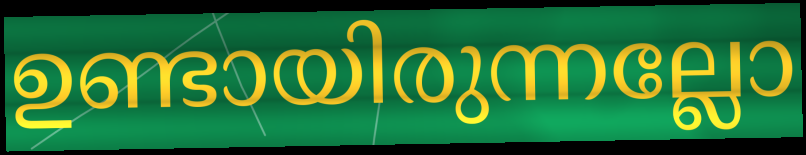
ഉണ്ടായിരുന്നല്ലോ